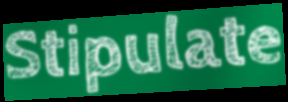
Stipulate